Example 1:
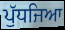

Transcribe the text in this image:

ਪੁੱਧਜਿਆ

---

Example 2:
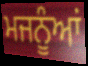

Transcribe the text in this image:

ਮਜਨੂੰਆਂ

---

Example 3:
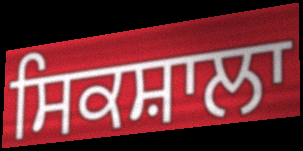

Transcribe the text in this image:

ਸਿਕਸ਼ਾਲਾ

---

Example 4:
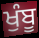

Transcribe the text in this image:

ਖੁੰਬੂ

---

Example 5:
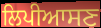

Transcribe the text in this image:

ਲਿਪੀਆਸਣ